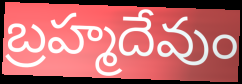
బ్రహ్మదేవుం